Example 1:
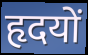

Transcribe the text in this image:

हृदयों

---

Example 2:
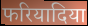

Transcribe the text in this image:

फरियादिया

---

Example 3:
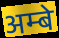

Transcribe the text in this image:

अम्बे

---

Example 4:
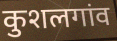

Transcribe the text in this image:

कुशलगांव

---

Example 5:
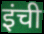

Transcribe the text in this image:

इंची